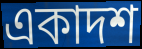
একাদশ